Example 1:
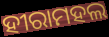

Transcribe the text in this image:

ହୀରାମହଲ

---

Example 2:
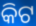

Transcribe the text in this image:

କିଟ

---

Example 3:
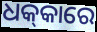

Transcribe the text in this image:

ଧକ୍‍କାରେ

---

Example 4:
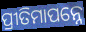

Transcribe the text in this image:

ପ୍ରୀତିମାପନ୍ନେ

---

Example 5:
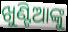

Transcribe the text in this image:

ଖୁଣ୍ଟିଆଙ୍କୁ